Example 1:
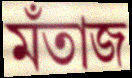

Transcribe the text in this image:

মঁতাজ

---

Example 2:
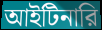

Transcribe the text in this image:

আইটিনারি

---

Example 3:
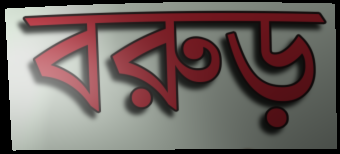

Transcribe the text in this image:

বরুড়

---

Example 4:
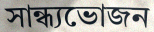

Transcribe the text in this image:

সান্ধ্যভোজন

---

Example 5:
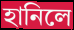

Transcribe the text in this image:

হানিলে